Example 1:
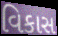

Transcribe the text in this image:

વિકાસ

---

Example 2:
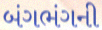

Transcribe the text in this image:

બંગભંગની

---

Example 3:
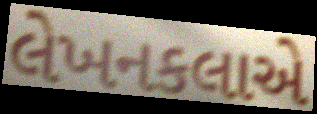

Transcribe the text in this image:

લેખનકલાએ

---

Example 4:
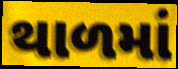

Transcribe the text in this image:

થાળમાં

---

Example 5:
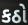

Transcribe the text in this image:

કઠો